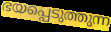
ഭയപ്പെടുത്തുന്ന